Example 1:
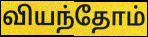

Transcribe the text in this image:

வியந்தோம்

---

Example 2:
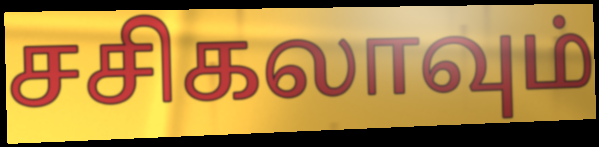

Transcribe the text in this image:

சசிகலாவும்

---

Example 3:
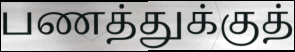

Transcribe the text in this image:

பணத்துக்குத்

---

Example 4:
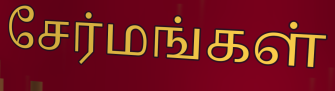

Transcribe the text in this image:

சேர்மங்கள்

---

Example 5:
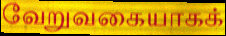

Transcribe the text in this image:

வேறுவகையாகக்